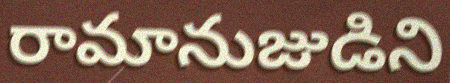
రామానుజుడిని